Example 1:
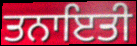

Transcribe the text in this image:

ਤਨਾਇਤੀ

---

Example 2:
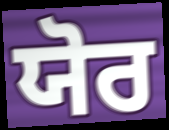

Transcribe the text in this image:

ਯੋਰ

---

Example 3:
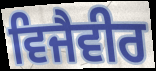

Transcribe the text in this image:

ਵਿਜੈਵੀਰ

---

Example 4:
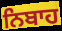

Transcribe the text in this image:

ਨਿਬਾਹ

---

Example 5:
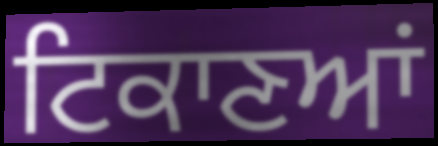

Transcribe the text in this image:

ਟਿਕਾਣਆਂ